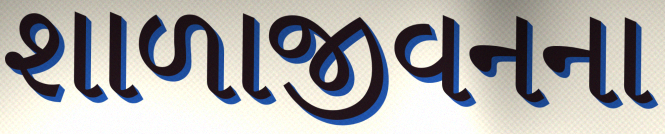
શાળાજીવનના